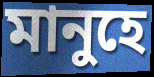
মানুহে